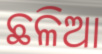
ଛଳିଆ